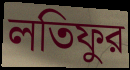
লতিফুর